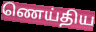
ணெய்திய